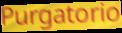
Purgatorio